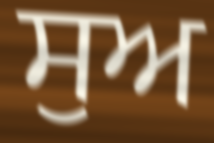
ਸੁਅ